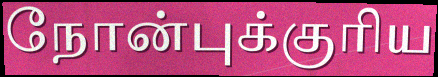
நோன்புக்குரிய